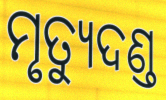
ମୃତ୍ୟୁଦଣ୍ଡ